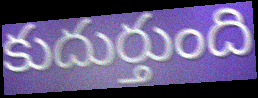
కుదుర్తుంది